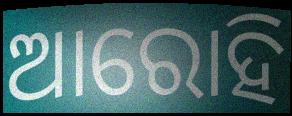
ଆରୋହି